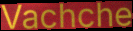
Vachche